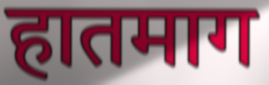
हातमाग